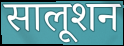
सालूशन